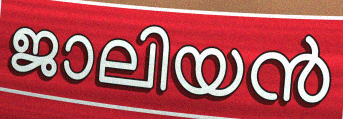
ജാലിയൻ